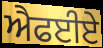
ਐਫਈਏ